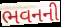
ભવનની